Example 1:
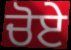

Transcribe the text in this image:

ਚੋਏ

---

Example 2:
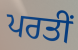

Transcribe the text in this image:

ਪਰਤੀਂ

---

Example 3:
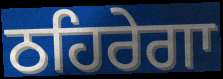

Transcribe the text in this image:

ਠਹਿਰੇਗਾ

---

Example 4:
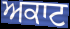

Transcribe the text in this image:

ਅਕਾਟ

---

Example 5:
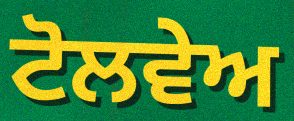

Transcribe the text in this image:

ਟੋਲਵੇਅ